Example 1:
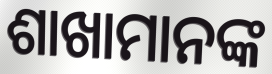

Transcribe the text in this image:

ଶାଖାମାନଙ୍କ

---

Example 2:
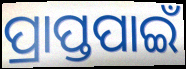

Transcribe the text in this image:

ପ୍ରାପ୍ତପାଇଁ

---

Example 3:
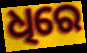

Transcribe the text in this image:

ଧିରେ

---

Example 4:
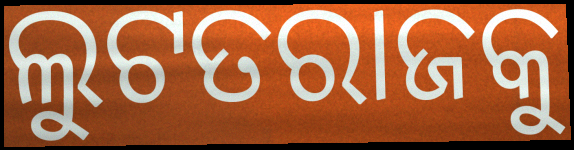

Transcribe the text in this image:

ଲୁଟତରାଜକୁ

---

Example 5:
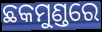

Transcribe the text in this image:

ଛକମୁଣ୍ଡରେ